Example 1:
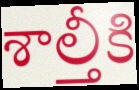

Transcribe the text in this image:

శాల్తీకి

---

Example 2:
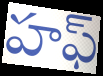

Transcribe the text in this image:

హఫ్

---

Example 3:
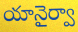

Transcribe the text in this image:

యానైర్వా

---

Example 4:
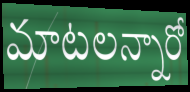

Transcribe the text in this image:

మాటలన్నారో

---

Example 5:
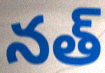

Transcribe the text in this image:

నత్